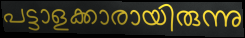
പട്ടാളക്കാരായിരുന്നു